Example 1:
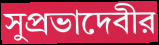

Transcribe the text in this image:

সুপ্রভাদেবীর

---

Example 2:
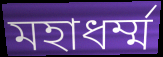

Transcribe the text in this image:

মহাধর্ম্ম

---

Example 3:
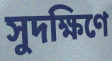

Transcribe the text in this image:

সুদক্ষিণে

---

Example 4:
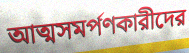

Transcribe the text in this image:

আত্মসমর্পণকারীদের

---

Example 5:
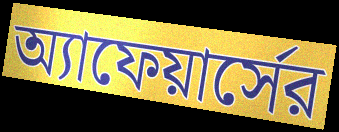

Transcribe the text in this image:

অ্যাফেয়ার্সের